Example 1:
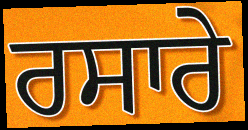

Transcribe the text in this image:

ਰਸਾਰੇ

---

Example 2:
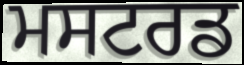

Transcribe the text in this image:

ਮਸਟਰਡ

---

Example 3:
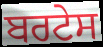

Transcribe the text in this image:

ਬਰਟੇਸ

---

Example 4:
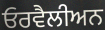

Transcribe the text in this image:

ਓਰਵੈਲੀਅਨ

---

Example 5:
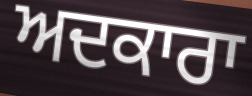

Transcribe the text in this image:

ਅਦਕਾਰਾ